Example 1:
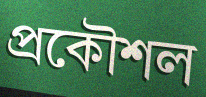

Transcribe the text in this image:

প্রকৌশল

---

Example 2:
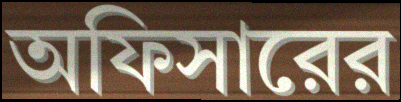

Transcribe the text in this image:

অফিসারের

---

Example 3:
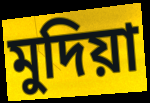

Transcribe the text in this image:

মুদিয়া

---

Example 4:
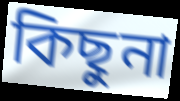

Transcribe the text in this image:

কিছুনা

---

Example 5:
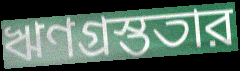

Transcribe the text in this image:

ঋণগ্রস্ততার